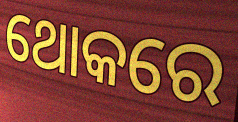
ଥୋକରେ